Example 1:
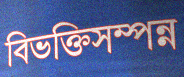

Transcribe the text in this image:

বিভক্তিসম্পন্ন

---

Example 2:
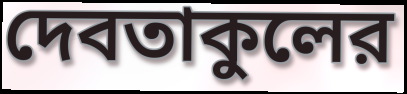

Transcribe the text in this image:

দেবতাকুলের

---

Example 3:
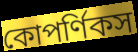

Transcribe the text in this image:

কোপর্ণিকস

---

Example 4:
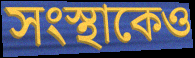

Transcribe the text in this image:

সংস্থাকেও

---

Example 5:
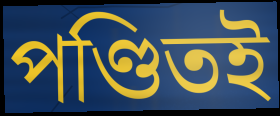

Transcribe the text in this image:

পণ্ডিতই